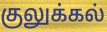
குலுக்கல்